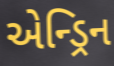
એન્ડ્રિન